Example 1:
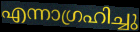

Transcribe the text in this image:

എന്നാഗ്രഹിച്ചു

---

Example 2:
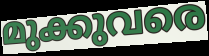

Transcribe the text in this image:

മുക്കുവരെ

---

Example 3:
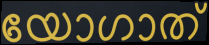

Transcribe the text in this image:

യോഗാത്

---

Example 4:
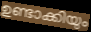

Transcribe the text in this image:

ഉണ്ടാക്കിയും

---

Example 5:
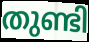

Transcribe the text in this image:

തുണ്ടി